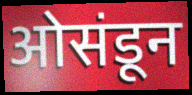
ओसंडून